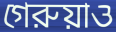
গেরুয়াও